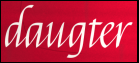
daugter